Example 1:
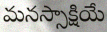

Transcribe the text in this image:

మనస్సాక్షియే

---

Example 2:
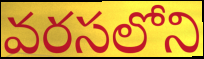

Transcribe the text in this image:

వరసలోని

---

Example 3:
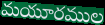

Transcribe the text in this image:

మయూరముల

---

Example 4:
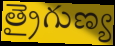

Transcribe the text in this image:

త్రైగుణ్య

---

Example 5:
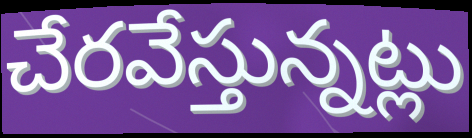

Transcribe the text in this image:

చేరవేస్తున్నట్లు